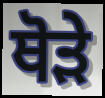
ਥੋਡ਼ੇ